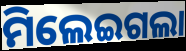
ମିଲେଇଗଲା